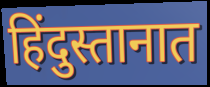
हिंदुस्तानात